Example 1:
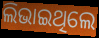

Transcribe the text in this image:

ଲିଭାଇଥିଲେ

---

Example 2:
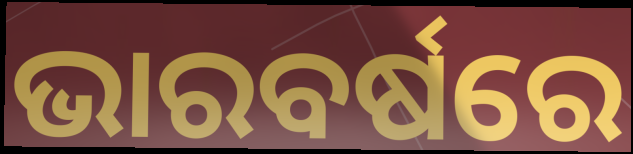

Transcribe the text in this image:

ଭାରବର୍ଷରେ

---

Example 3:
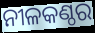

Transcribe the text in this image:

ନୀଳକଣ୍ଠର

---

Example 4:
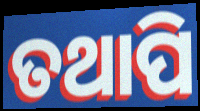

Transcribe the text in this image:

ତଥାପି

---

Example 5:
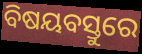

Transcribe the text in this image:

ବିଷୟବସ୍ତୁରେ